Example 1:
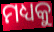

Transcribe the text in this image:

ମଧ୍ୟକୁ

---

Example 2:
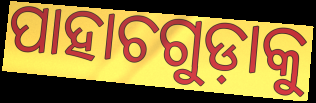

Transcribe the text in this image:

ପାହାଚଗୁଡ଼ାକୁ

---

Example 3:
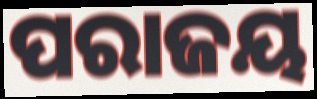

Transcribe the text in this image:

ପରାଜୟ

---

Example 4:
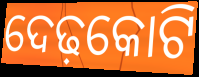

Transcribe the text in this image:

ଦେଢ଼କୋଟି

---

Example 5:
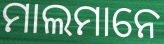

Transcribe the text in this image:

ମାଲମାନେ